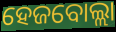
ହେଜବୋଲ୍ଲା